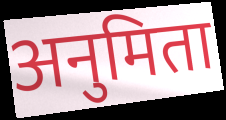
अनुमिता